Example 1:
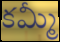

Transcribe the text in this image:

కమ్మీ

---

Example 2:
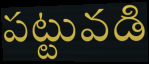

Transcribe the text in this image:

పట్టువడి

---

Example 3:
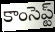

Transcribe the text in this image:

కాంసెప్ట్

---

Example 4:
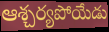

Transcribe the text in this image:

ఆశ్చర్యపోయేడు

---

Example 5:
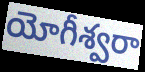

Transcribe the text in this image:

యోగీశ్వరా